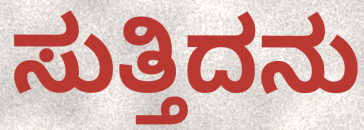
ಸುತ್ತಿದನು